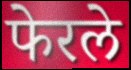
फेरले